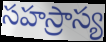
సహస్రాస్య